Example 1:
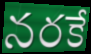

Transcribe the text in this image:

నరకే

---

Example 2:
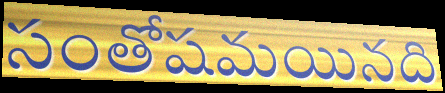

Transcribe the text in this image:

సంతోషమయినది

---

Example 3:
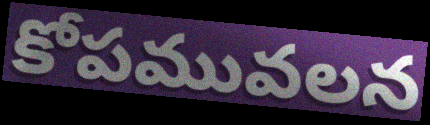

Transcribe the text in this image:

కోపమువలన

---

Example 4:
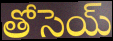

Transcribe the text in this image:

తోసెయ్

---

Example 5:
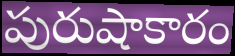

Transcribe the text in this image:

పురుషాకారం